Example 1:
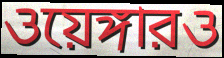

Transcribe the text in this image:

ওয়েঙ্গারও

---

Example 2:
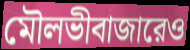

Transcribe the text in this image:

মৌলভীবাজারেও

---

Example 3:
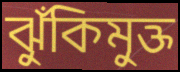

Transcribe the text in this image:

ঝুঁকিমুক্ত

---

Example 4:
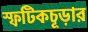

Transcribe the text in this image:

স্ফটিকচূড়ার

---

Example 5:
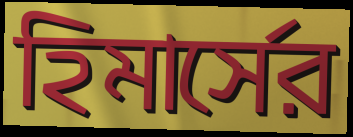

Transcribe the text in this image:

হিমার্সের